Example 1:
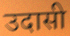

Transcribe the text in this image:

उदासी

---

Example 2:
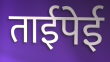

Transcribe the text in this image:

ताईपेई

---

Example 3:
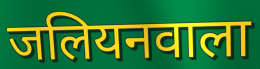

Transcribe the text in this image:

जलियनवाला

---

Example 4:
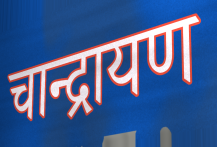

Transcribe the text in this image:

चान्द्रायण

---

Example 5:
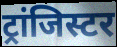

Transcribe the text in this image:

ट्रांजिस्टर